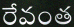
రేవంత